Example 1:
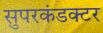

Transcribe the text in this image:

सुपरकंडक्टर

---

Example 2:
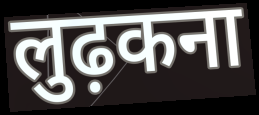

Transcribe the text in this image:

लुढ़कना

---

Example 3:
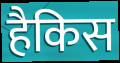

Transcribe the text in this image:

हैकिस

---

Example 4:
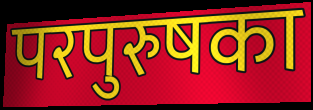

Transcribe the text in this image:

परपुरुषका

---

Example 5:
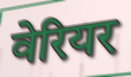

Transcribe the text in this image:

वेरियर